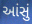
આંસું